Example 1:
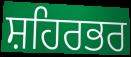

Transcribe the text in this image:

ਸ਼ਹਿਰਭਰ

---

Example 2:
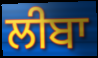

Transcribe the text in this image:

ਲੀਬਾ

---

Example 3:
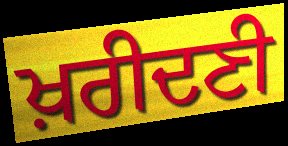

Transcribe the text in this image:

ਖ਼ਰੀਦਣੀ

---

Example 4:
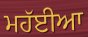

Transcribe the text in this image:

ਮਹੱਈਆ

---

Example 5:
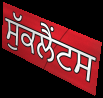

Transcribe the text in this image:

ਸੁੱਕਲੈਂਟਸ